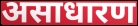
असाधारण